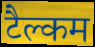
टैल्कम